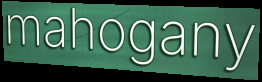
mahogany